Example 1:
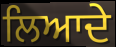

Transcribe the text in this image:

ਲਿਆਦੇ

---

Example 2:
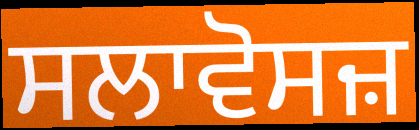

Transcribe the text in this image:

ਸਲਾਵੋਸਜ਼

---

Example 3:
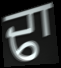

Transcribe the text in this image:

ਢਾ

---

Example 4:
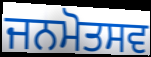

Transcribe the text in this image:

ਜਨਮੋਤਸਵ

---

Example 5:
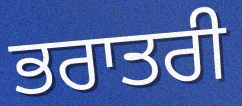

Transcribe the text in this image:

ਭਰਾਤਰੀ